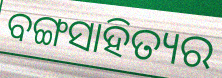
ବଙ୍ଗସାହିତ୍ୟର